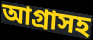
আগ্রাসহ